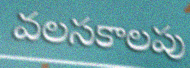
వలసకాలపు